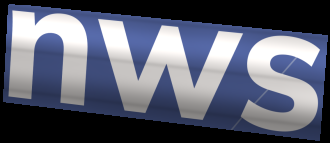
nws